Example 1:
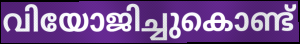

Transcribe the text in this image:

വിയോജിച്ചുകൊണ്ട്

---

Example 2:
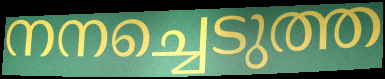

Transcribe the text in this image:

നനച്ചെടുത്ത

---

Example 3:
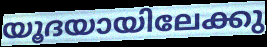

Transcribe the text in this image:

യൂദയായിലേക്കു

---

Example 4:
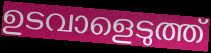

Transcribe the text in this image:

ഉടവാളെടുത്ത്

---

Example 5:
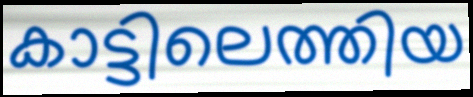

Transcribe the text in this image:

കാട്ടിലെത്തിയ